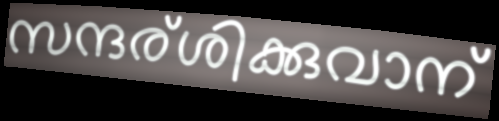
സന്ദര്ശിക്കുവാന്